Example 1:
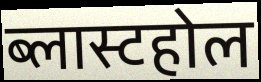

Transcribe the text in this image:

ब्लास्टहोल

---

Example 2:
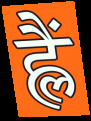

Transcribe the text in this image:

ह्लैं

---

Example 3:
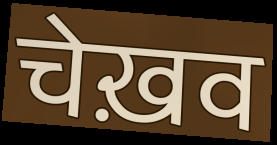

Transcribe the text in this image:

चेख़व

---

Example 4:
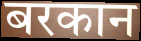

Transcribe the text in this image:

बरकान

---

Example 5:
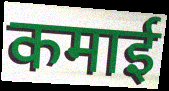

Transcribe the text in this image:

कमाई